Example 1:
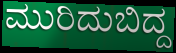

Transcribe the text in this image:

ಮುರಿದುಬಿದ್ದ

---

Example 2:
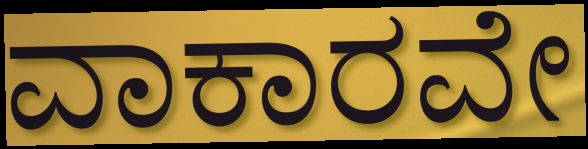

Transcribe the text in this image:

ವಾಕಾರವೇ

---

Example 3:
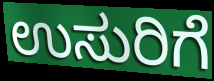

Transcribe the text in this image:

ಉಸುರಿಗೆ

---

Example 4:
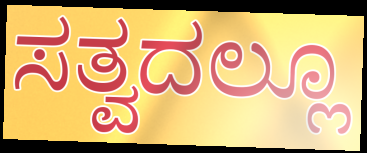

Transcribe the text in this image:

ಸತ್ವದಲ್ಲೂ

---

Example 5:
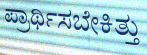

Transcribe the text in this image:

ಪ್ರಾರ್ಥಿಸಬೇಕಿತ್ತು